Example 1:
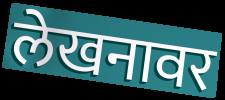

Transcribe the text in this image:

लेखनावर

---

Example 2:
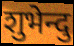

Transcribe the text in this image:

शुभेन्दु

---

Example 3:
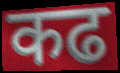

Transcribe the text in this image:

कढ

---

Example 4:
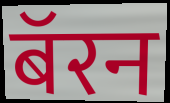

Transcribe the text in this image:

बॅरन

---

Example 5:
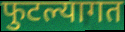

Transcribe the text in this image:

फुटल्यागत